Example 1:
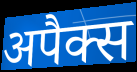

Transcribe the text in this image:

अपैक्स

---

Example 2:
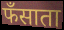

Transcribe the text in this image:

फँसाता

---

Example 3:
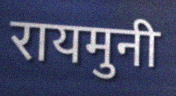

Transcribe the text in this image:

रायमुनी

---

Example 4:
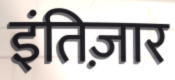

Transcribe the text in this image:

इंतिज़ार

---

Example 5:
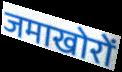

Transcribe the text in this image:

जमाखोरों